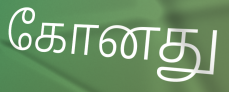
கோனது